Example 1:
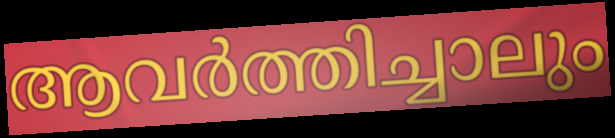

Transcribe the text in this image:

ആവർത്തിച്ചാലും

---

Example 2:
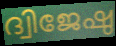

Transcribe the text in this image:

ദ്വിജേഷു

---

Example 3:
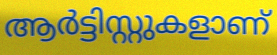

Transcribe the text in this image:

ആർട്ടിസ്റ്റുകളാണ്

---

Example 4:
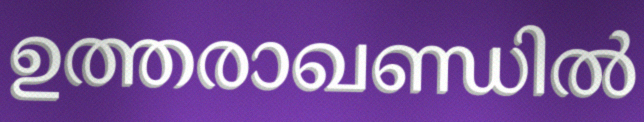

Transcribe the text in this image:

ഉത്തരാഖണ്ഡിൽ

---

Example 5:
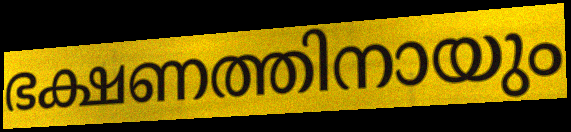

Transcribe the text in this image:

ഭക്ഷണത്തിനായും